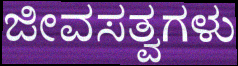
ಜೀವಸತ್ವಗಳು